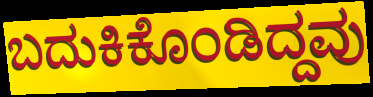
ಬದುಕಿಕೊಂಡಿದ್ದವು